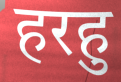
हरहु